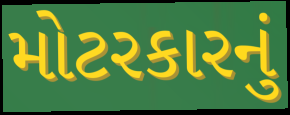
મોટરકારનું